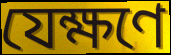
যেক্ষণে